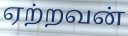
ஏற்றவன்